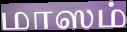
மாஸம்